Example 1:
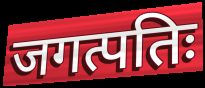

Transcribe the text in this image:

जगत्पतिः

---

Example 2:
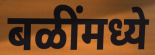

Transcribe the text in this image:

बळींमध्ये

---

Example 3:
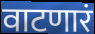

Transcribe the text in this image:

वाटणारं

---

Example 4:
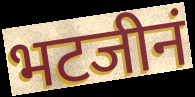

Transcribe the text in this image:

भटजीनं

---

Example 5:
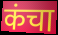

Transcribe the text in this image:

कंचा